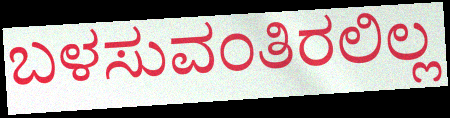
ಬಳಸುವಂತಿರಲಿಲ್ಲ